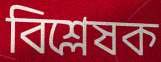
বিশ্লেষক